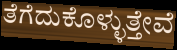
ತೆಗೆದುಕೊಳ್ಳುತ್ತೇವೆ